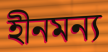
হীনমন্য